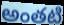
అంతటి